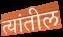
त्‍यांतील